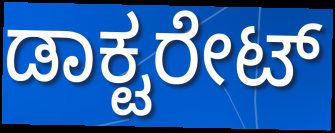
ಡಾಕ್ಟರೇಟ್